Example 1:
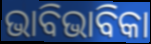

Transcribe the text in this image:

ଭାବିଭାବିକା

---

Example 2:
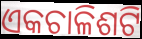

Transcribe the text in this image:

ଏକଚାଳିଶଟି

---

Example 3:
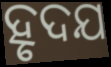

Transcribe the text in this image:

ହୃଦଯ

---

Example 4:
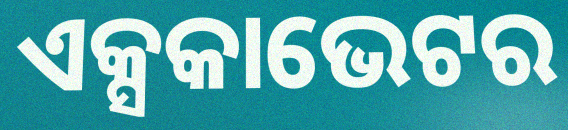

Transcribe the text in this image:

ଏକ୍ସକାଭେଟର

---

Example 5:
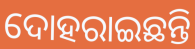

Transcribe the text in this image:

ଦୋହରାଇଛନ୍ତି